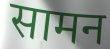
सामन